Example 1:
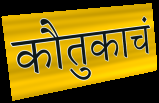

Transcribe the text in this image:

कौतुकाचं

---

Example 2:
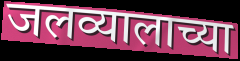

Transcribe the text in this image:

जलव्यालाच्या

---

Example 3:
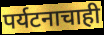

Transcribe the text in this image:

पर्यटनाचाही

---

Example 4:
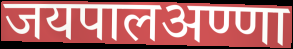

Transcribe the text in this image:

जयपालअण्णा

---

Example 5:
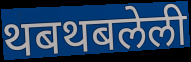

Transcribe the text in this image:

थबथबलेली